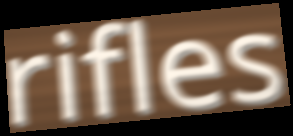
rifles